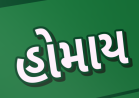
હોમાય